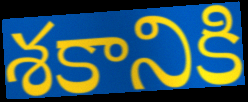
శకానికి